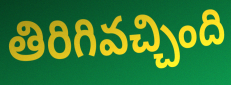
తిరిగివచ్చింది